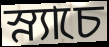
স্ন্যাচে